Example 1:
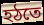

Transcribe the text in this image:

হঠতে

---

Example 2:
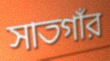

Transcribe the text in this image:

সাতগাঁর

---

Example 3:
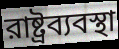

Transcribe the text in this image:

রাষ্ট্রব্যবস্থা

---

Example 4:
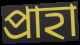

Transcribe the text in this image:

প্রাহা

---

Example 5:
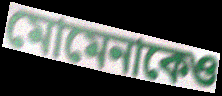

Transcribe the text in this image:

মোমেনাকেও